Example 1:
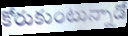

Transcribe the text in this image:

కోరుకుంటున్నాడో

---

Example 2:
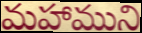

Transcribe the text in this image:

మహాముని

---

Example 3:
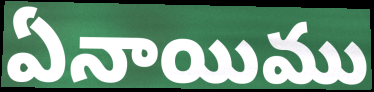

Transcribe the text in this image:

ఏనాయిము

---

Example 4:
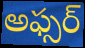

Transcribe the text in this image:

అఫ్సర్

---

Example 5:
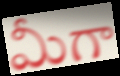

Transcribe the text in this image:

మీగా